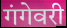
गंगेवरी